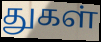
துகள்